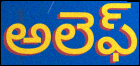
అలెఫ్